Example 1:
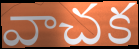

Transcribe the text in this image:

వాచక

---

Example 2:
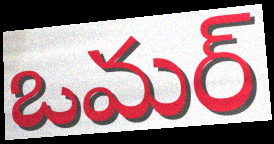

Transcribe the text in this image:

ఒమర్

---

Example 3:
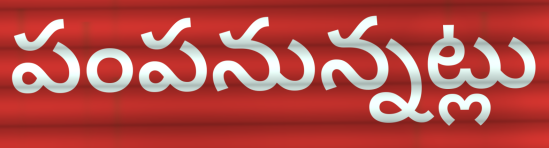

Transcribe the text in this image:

పంపనున్నట్లు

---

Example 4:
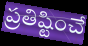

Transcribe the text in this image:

ప్రతిష్టించే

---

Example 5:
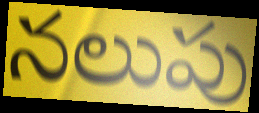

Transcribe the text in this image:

నలుపు